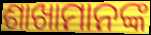
ଶାଖାମାନଙ୍କ